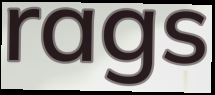
rags